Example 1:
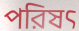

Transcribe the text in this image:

পরিষৎ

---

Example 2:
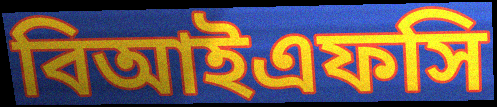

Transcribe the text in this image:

বিআইএফসি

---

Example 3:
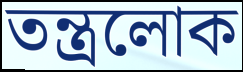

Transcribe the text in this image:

তন্ত্রলোক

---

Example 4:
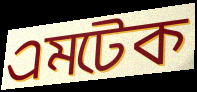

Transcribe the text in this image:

এমটেক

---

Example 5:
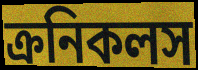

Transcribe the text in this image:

ক্রনিকলস